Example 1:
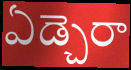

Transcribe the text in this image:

ఏడ్చెరా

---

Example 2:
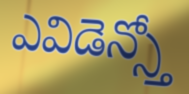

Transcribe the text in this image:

ఎవిడెన్స్తో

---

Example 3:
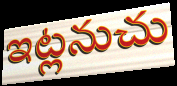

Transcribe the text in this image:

ఇట్లనుచు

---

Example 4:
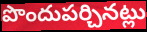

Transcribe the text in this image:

పొందుపర్చినట్లు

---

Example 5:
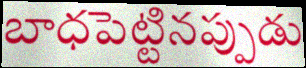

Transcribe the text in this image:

బాధపెట్టినప్పుడు